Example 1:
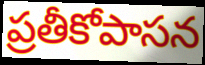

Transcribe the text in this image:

ప్రతీకోపాసన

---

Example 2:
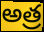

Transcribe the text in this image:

అత్ర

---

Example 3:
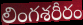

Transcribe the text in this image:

లింగశరీరం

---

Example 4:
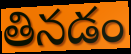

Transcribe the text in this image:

తినడం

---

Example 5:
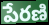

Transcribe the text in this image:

పేరణి